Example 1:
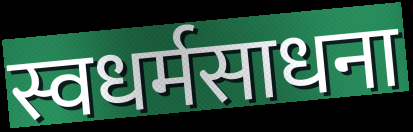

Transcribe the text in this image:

स्वधर्मसाधना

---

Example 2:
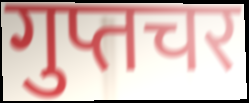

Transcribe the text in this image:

गुप्तचर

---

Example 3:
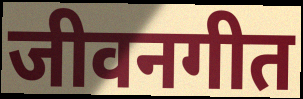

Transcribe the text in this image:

जीवनगीत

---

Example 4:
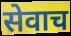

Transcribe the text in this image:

सेवाच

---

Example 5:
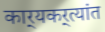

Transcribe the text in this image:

कार्यकर्त्यांत